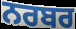
ਨਰਬਰ